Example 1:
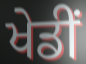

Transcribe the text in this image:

ਖੇਡੀਂ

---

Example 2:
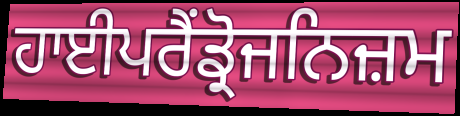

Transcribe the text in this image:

ਹਾਈਪਰੈਂਡ੍ਰੋਜਨਿਜ਼ਮ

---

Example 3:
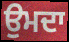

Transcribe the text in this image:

ਉਮਦਾ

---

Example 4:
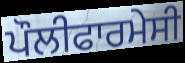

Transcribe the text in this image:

ਪੌਲੀਫਾਰਮੇਸੀ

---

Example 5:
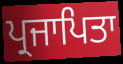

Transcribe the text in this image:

ਪ੍ਰਜਾਪਿਤਾ